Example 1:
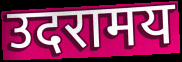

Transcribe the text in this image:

उदरामय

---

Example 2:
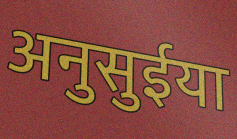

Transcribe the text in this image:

अनुसुईया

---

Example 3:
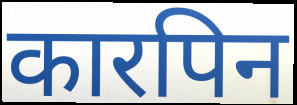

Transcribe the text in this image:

कारपिन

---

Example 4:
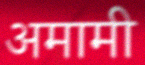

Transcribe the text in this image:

अमामी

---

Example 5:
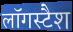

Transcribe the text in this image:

लॉगस्टैश